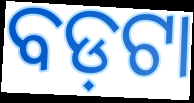
ବଡ଼ଟା